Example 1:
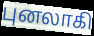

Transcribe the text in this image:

புனலாகி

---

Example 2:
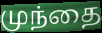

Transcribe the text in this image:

முந்தை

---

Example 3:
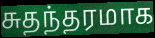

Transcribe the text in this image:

சுதந்தரமாக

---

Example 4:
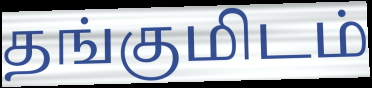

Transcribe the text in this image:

தங்குமிடம்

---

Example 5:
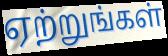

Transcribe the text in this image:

ஏற்றுங்கள்